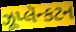
ઝૂપ્લૅન્કટન